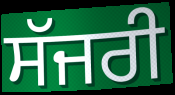
ਸੱਜਰੀ